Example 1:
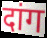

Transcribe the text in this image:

दांग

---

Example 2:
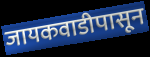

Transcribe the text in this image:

जायकवाडीपासून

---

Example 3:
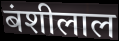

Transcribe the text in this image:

बंशीलाल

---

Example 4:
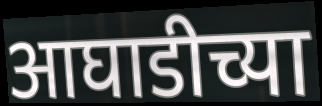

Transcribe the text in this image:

आघाडीच्‍या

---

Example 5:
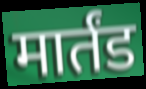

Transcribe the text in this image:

मार्तंड